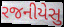
રજનીયેસુ